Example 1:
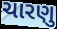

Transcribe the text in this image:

ચારણુ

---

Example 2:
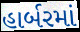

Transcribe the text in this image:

હાર્બરમાં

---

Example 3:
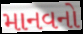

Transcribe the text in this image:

માનવનો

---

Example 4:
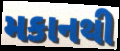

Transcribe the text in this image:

મકાનથી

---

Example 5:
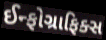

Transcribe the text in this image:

ઈન્ફોગ્રાફિક્સ